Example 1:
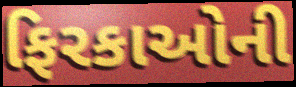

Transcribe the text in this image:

ફિરકાઓની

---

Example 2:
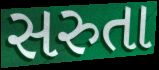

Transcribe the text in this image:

સરુતા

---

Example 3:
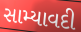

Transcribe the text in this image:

સામ્યાવદી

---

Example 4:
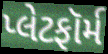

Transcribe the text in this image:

પ્લેટફૉર્મ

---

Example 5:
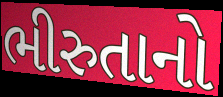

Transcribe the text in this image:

ભીરુતાનો